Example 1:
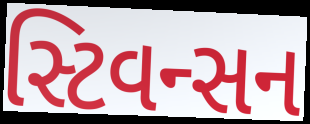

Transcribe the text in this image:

સ્ટિવન્સન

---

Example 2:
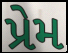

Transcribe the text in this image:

પ્રેમ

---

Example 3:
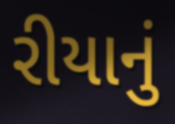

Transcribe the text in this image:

રીયાનું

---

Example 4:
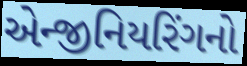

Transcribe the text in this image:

એન્જીનિયરિંગનો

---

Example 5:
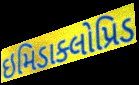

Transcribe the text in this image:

ઇમિડાક્લોપ્રિડ